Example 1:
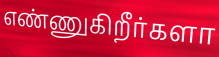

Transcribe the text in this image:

எண்ணுகிறீர்களா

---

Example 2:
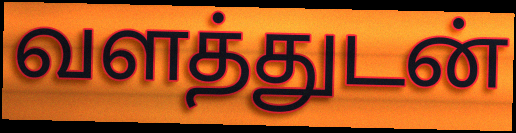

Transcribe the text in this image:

வளத்துடன்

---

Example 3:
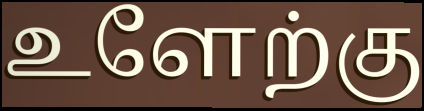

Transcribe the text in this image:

உளேற்கு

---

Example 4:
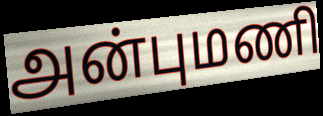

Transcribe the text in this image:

அன்புமணி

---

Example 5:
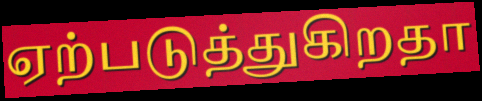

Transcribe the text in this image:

ஏற்படுத்துகிறதா